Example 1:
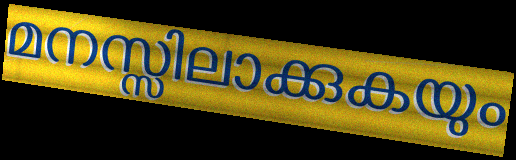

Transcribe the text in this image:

മനസ്സിലാക്കുകയും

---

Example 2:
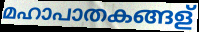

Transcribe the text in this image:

മഹാപാതകങ്ങള്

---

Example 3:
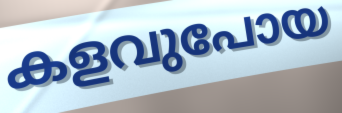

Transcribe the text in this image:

കളവുപോയ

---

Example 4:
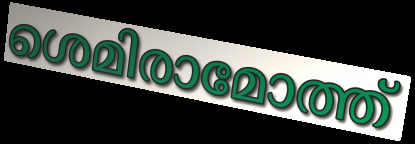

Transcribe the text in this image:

ശെമിരാമോത്ത്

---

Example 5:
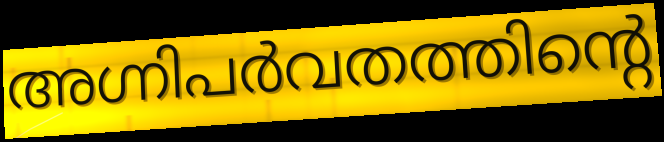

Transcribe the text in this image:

അഗ്നിപർവതത്തിന്റെ